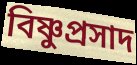
বিষ্ণুপ্রসাদ